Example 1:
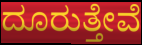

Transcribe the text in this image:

ದೂರುತ್ತೇವೆ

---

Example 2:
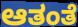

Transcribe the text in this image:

ಆತಂತೆ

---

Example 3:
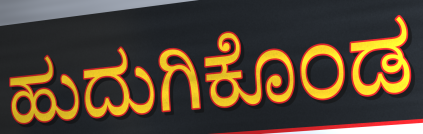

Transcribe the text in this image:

ಹುದುಗಿಕೊಂಡ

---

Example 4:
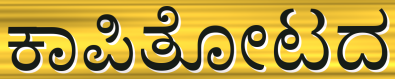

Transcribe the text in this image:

ಕಾಪಿತೋಟದ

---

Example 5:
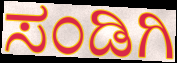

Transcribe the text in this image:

ಸಂಡಿಗಿ